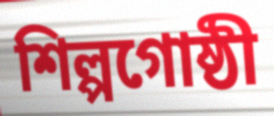
শিল্পগোষ্ঠী